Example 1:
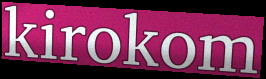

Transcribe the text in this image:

kirokom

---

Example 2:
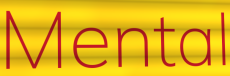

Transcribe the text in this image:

Mental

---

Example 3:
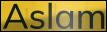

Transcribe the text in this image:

Aslam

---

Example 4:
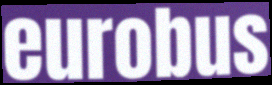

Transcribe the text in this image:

eurobus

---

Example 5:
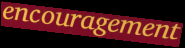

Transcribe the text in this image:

encouragement